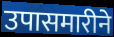
उपासमारीने